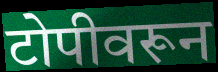
टोपीवरून